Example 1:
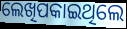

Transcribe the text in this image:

ଲେଖିପକାଇଥିଲେ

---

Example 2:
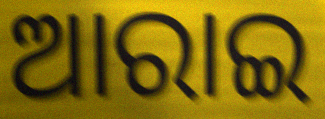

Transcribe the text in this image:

ଆରାଇ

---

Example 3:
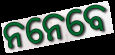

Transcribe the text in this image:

ନନେବେ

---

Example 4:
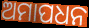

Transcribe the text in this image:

ଅମାପଧନ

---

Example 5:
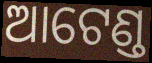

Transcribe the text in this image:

ଆଟେଣ୍ଡ